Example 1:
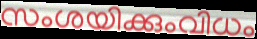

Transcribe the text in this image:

സംശയിക്കുംവിധം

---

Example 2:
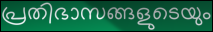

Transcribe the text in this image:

പ്രതിഭാസങ്ങളുടെയും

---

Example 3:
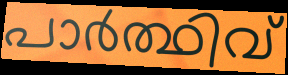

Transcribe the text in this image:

പാർത്ഥിവ്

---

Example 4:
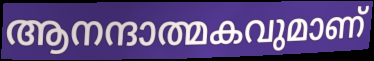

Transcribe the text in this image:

ആനന്ദാത്മകവുമാണ്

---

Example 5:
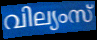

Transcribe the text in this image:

വില്യംസ്